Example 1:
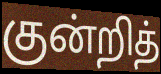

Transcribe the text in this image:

குன்றித்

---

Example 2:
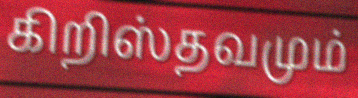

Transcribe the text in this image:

கிறிஸ்தவமும்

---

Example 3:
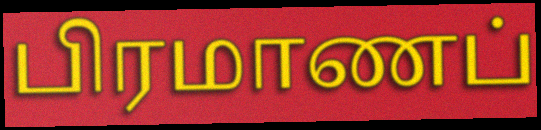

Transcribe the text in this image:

பிரமாணப்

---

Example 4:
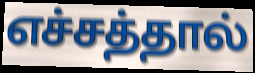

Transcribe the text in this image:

எச்சத்தால்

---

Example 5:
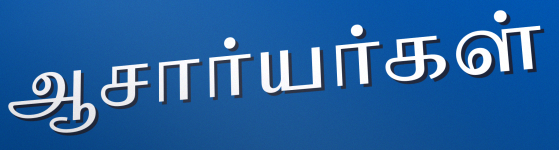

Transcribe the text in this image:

ஆசார்யர்கள்